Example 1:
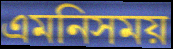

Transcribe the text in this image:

এমনিসময়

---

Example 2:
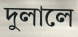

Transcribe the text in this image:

দুলালে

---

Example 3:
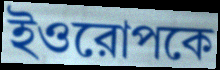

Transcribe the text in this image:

ইওরোপকে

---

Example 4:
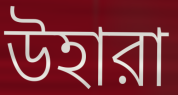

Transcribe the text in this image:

উহারা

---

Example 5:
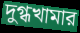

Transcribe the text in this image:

দুগ্ধখামার